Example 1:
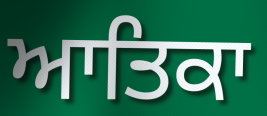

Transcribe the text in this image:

ਆਤਿਕਾ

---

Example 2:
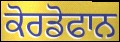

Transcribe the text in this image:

ਕੋਰਡੋਫਾਨ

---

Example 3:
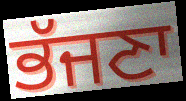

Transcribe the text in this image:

ਭੱਜਣਾ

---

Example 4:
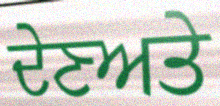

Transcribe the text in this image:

ਦੇਣਅਤੇ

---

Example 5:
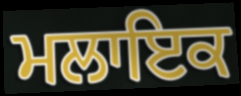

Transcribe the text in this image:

ਮਲਾਇਕ